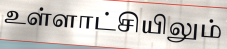
உள்ளாட்சியிலும்